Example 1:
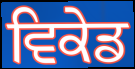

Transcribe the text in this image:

ਵਿਕੇਡ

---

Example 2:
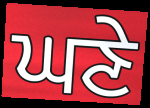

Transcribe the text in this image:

ਘਣੇ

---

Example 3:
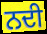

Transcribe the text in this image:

ਨਦੀ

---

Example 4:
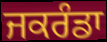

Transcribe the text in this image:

ਜਕਰੰਡਾ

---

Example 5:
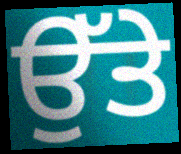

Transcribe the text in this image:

ਉੱਤੇ